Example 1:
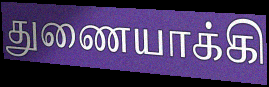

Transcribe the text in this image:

துணையாக்கி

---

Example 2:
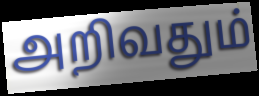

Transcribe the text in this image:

அறிவதும்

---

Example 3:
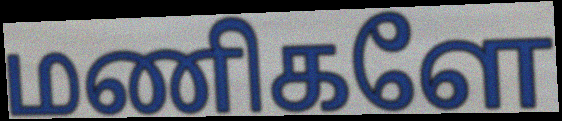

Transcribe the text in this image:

மணிகளே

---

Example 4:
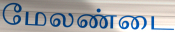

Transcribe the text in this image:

மேலண்டை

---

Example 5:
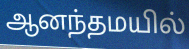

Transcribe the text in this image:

ஆனந்தமயில்